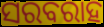
ସରବରାହ